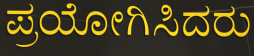
ಪ್ರಯೋಗಿಸಿದರು